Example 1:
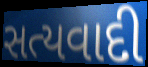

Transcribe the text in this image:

સત્યવાદી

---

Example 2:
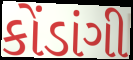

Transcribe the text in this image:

કોંડાંગી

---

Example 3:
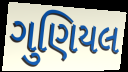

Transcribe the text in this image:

ગુણિયલ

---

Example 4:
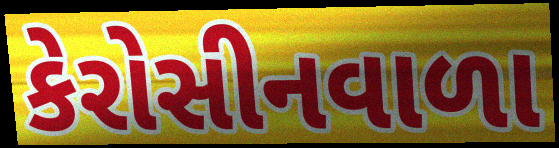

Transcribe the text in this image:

કેરોસીનવાળા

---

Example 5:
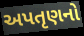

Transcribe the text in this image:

અપતૃણનો